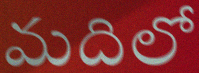
మదిలో